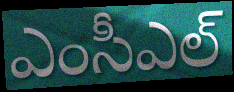
ఎంసీఎల్